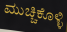
ಮುಚ್ಚಿಕೊಳ್ಳಿ